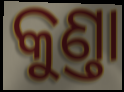
କୁଣ୍ତା